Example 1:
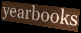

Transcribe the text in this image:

yearbooks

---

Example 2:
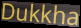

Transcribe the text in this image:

Dukkha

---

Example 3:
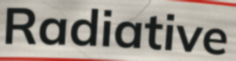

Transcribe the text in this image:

Radiative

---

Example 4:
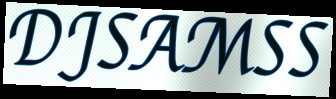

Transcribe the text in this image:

DJSAMSS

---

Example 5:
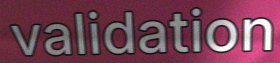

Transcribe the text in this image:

validation